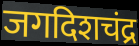
जगदिशचंद्र